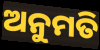
ଅନୁମତି